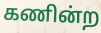
கணின்ற